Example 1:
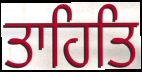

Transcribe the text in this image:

ਤਾਹਿਤਿ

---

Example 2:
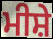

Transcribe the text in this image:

ਮੀਸ਼ੇ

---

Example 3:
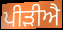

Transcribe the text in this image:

ਪੀੜੀਐ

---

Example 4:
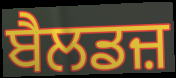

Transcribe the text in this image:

ਬੈਲਡਜ਼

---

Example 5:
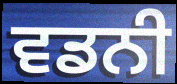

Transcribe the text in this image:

ਵਡਨੀ